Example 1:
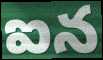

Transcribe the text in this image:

ఐన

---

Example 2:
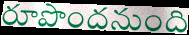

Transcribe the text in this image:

రూపొందనుంది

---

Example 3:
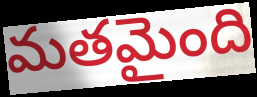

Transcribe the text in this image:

మతమైంది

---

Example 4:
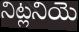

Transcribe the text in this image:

నిట్లనియె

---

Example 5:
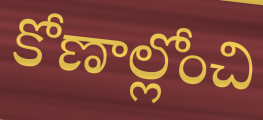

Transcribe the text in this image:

కోణాల్లోంచి